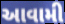
આવામી